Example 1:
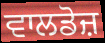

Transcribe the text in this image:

ਵਾਲਡੋਜ਼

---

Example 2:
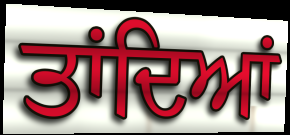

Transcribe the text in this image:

ਤਾਂਦਿਆਂ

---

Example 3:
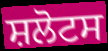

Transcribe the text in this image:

ਸ਼ਲੋਟਸ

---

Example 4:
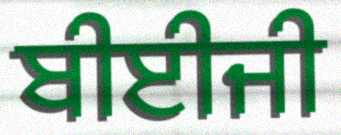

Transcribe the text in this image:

ਬੀਈਜੀ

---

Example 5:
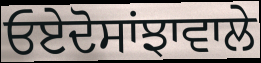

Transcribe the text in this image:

ਓਏਦੋਸਾਂਝਾਵਾਲੇ